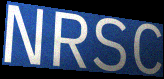
NRSC